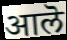
आलॆ